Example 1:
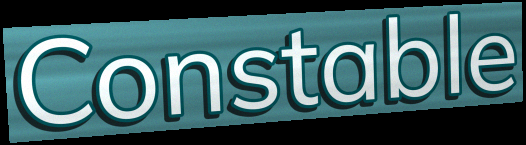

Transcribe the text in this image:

Constable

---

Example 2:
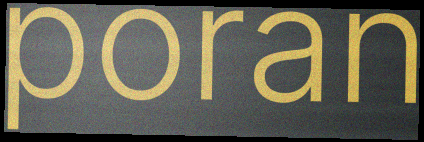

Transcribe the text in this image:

poran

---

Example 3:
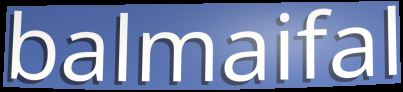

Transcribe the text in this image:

balmaifal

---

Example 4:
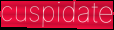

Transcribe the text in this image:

cuspidate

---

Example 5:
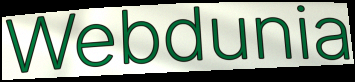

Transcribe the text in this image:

Webdunia